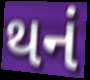
થનં